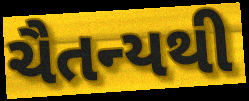
ચૈતન્યથી